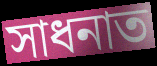
সাধনাত